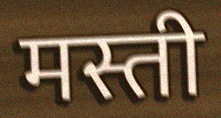
मस्‍ती